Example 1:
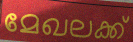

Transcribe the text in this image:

മേഖലക്ക്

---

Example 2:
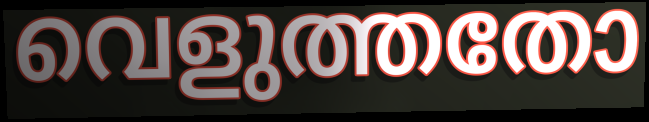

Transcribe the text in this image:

വെളുത്തതോ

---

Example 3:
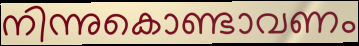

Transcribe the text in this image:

നിന്നുകൊണ്ടാവണം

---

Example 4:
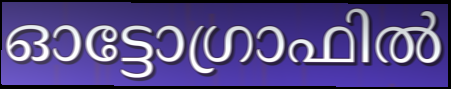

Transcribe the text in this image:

ഓട്ടോഗ്രാഫിൽ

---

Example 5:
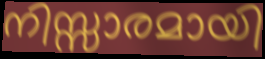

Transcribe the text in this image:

നിസ്സാരമായി